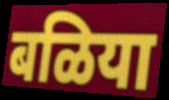
बळिया